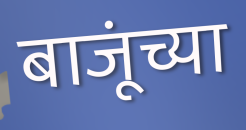
बाजूंच्या